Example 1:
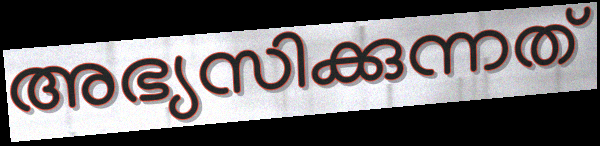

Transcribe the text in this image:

അഭ്യസിക്കുന്നത്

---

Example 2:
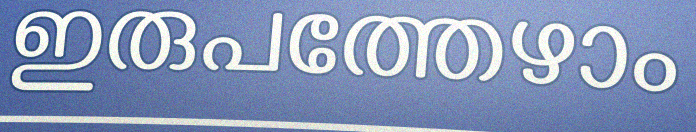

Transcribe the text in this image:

ഇരുപത്തേഴാം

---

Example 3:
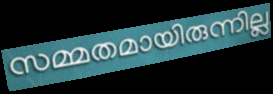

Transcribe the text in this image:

സമ്മതമായിരുന്നില്ല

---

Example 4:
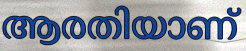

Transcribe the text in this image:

ആരതിയാണ്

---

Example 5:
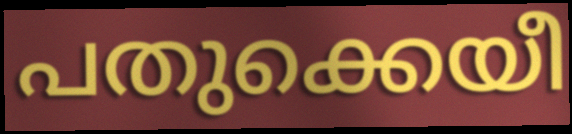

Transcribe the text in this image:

പതുക്കെയീ